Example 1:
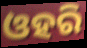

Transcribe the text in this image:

ଓହରି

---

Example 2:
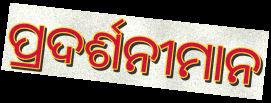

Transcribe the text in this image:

ପ୍ରଦର୍ଶନୀମାନ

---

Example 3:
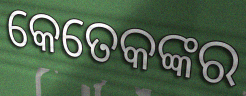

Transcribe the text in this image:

କେତେକଙ୍କର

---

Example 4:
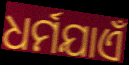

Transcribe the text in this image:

ଧର୍ମଯାଏଁ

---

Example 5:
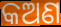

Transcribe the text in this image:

କଅଣ